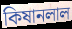
কিষানলাল